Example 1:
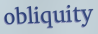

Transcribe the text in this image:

obliquity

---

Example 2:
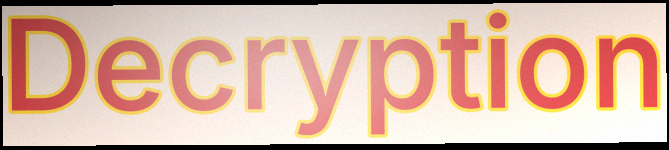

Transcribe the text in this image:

Decryption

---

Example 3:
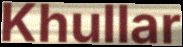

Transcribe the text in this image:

Khullar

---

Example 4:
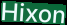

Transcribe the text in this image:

Hixon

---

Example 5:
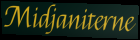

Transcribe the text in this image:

Midjaniterne